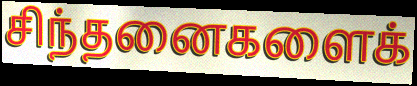
சிந்தனைகளைக்